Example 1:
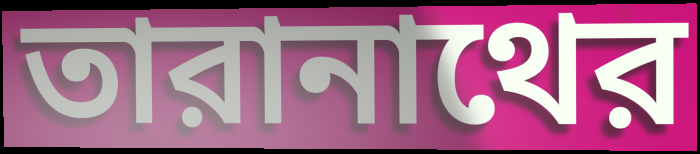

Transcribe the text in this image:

তারানাথের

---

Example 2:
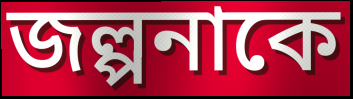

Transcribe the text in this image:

জল্পনাকে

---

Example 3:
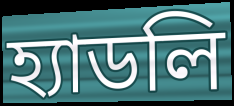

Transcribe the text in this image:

হ্যাডলি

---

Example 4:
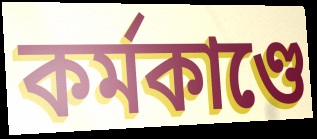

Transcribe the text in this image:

কর্মকাণ্ডে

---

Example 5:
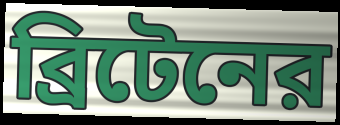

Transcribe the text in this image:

ব্রিটেনের